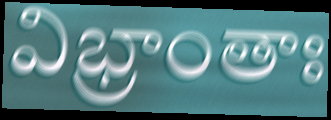
విభ్రాంతాః